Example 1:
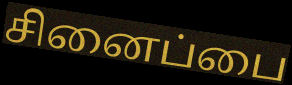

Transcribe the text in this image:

சினைப்பை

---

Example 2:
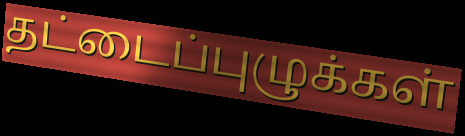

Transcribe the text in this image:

தட்டைப்புழுக்கள்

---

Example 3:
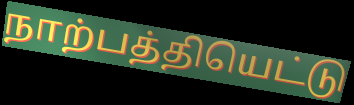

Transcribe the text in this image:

நாற்பத்தியெட்டு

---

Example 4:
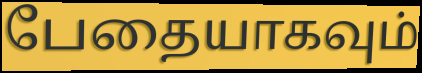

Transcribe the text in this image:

பேதையாகவும்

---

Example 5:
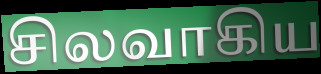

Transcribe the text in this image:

சிலவாகிய